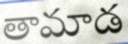
తామాడ